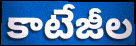
కాటేజీల